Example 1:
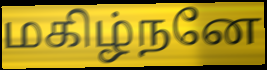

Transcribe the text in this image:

மகிழ்நனே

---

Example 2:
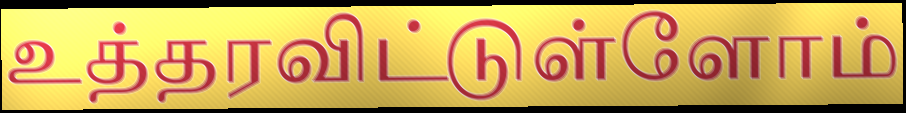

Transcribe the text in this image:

உத்தரவிட்டுள்ளோம்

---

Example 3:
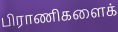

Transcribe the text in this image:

பிராணிகளைக்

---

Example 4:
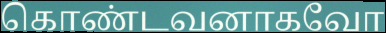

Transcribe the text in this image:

கொண்டவனாகவோ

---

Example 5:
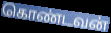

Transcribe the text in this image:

கொண்டவன்